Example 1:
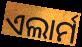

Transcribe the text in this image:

ଏଲାର୍ମ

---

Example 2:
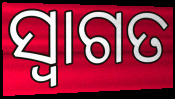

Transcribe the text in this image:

ସ୍ୱାଗତ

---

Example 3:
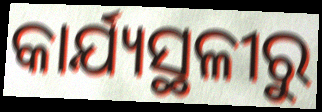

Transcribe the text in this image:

କାର୍ଯ୍ୟସ୍ଥଳୀରୁ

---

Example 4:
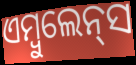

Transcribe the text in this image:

ଏମ୍ବୁଲେନ୍‌ସ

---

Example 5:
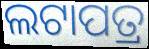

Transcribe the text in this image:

ଲଟାପତ୍ର